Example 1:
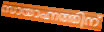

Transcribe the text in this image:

സായാഹ്നത്തിന്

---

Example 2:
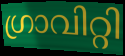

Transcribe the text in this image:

ഗ്രാവിറ്റി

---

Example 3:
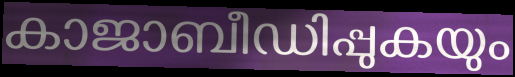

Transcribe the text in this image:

കാജാബീഡിപ്പുകയും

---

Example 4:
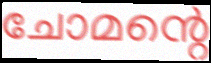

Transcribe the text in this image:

ചോമന്റെ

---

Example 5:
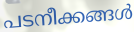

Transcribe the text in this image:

പടനീക്കങ്ങൾ